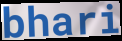
bhari